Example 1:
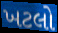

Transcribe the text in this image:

ખટલો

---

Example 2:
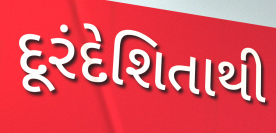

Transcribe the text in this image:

દૂરંદેશિતાથી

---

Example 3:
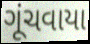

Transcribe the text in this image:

ગૂંચવાયા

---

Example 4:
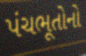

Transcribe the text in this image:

પંચભૂતોનો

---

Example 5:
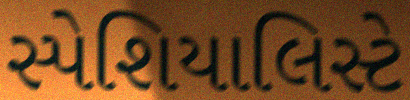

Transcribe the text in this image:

સ્પેશિયાલિસ્ટે